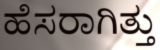
ಹೆಸರಾಗಿತ್ತು